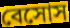
বেসোস